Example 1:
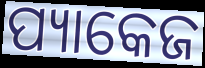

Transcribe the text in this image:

ପ୍ୟାକେଜ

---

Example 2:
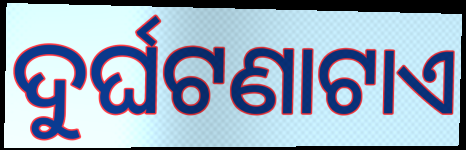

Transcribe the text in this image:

ଦୁର୍ଘଟଣାଟାଏ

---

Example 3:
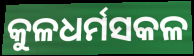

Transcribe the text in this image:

କୁଳଧର୍ମସକଳ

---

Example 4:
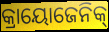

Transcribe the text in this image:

କ୍ରାୟୋଜେନିକ୍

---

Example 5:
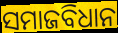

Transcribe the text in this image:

ସମାଜବିଧାନ